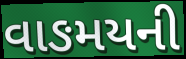
વાઙમયની